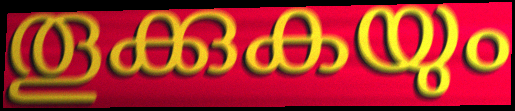
തൂക്കുകയും